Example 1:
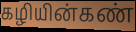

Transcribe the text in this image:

கழியின்கண்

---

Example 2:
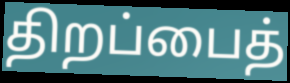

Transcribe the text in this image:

திறப்பைத்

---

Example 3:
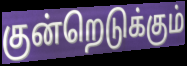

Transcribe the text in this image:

குன்றெடுக்கும்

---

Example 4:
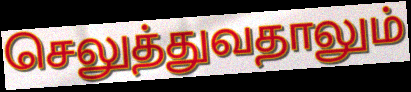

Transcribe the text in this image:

செலுத்துவதாலும்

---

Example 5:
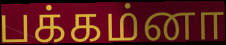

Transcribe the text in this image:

பக்கம்னா